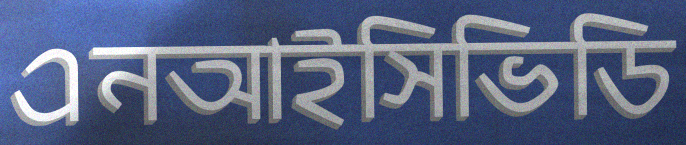
এনআইসিভিডি